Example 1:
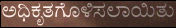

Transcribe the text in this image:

ಅಧಿಕೃತಗೊಳಿಸಲಾಯಿತು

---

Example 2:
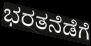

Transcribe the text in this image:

ಭರತನೆಡೆಗೆ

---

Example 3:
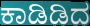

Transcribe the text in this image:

ಕಾಡಿಡಿದ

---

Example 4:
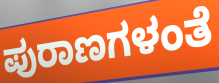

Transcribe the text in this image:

ಪುರಾಣಗಳಂತೆ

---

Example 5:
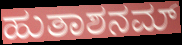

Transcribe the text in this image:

ಹುತಾಶನಮ್